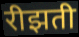
रीझती